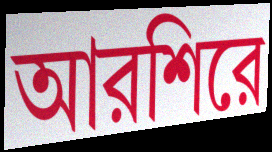
আরশিরে